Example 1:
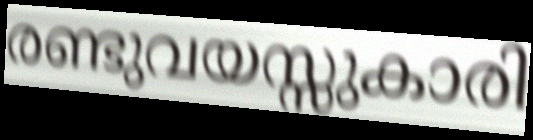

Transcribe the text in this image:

രണ്ടുവയസ്സുകാരി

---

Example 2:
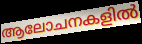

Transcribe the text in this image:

ആലോചനകളിൽ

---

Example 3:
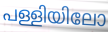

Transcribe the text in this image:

പള്ളിയിലോ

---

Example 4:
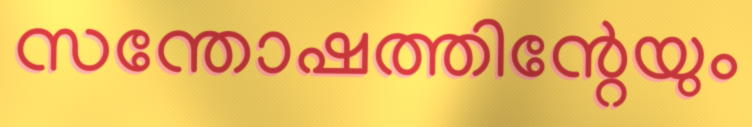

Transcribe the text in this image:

സന്തോഷത്തിന്റേയും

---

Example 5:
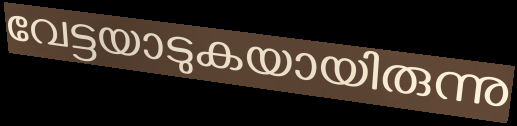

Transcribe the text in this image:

വേട്ടയാടുകയായിരുന്നു